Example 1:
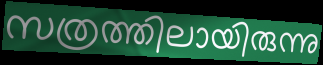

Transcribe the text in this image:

സത്രത്തിലായിരുന്നു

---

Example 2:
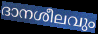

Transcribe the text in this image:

ദാനശീലവും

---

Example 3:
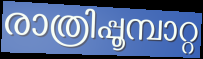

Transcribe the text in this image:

രാത്രിപ്പൂമ്പാറ്റ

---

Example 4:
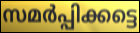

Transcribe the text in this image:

സമർപ്പിക്കട്ടെ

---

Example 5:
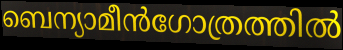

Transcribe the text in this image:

ബെന്യാമീൻഗോത്രത്തിൽ